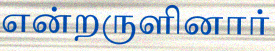
என்றருளினார்